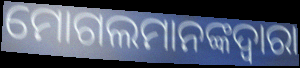
ମୋଗଲମାନଙ୍କଦ୍ୱାରା